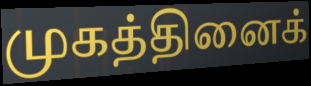
முகத்தினைக்